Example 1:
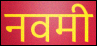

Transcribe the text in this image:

नवमी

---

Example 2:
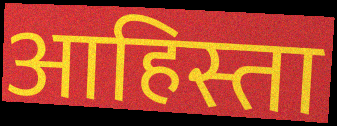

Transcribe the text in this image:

आहिस्‍ता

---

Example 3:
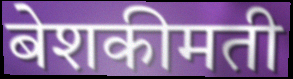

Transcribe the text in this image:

बेशकीमती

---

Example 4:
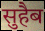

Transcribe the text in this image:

सुहैब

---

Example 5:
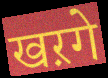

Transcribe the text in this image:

खऱगे